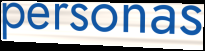
personas